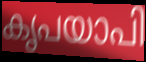
കൃപയാപി